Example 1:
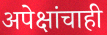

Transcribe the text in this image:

अपेक्षांचाही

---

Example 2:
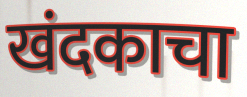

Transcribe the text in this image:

खंदकाचा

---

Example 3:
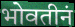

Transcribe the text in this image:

भोवतीनं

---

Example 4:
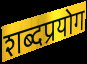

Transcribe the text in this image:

शब्दप्रयोग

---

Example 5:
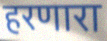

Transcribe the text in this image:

हरणारा